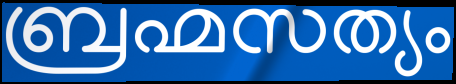
ബ്രഹ്മസത്യം